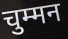
चुम्मन